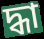
দ্ধা